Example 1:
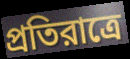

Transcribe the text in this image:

প্রতিরাত্রে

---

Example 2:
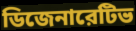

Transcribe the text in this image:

ডিজেনারেটিভ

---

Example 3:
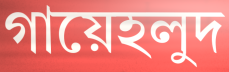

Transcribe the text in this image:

গায়েহলুদ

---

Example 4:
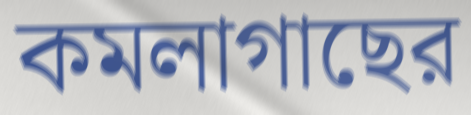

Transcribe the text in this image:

কমলাগাছের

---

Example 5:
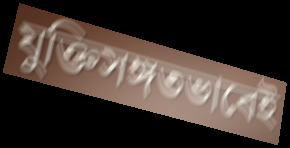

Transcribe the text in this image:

যুক্তিসঙ্গতভাবেই